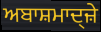
ਅਬਾਸ਼ਮਾਦ੍ਜ਼ੇ